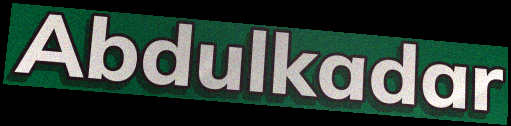
Abdulkadar